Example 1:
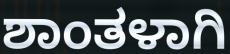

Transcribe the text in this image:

ಶಾಂತಳಾಗಿ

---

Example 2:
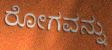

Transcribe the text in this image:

ರೋಗವನ್ನು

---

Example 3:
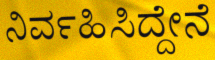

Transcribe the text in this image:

ನಿರ್ವಹಿಸಿದ್ದೇನೆ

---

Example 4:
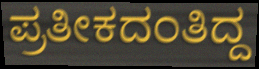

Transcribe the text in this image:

ಪ್ರತೀಕದಂತಿದ್ದ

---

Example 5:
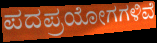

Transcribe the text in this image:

ಪದಪ್ರಯೋಗಗಳಿವೆ